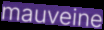
mauveine